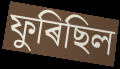
ফুৰিছিল